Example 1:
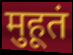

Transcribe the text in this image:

मुहूतं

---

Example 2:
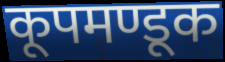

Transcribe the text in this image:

कूपमण्डूक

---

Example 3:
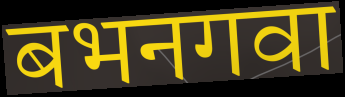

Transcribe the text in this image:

बभनगवा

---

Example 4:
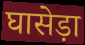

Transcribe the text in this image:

घासेड़ा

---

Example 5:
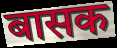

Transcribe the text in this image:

बासक